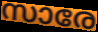
സാരേ